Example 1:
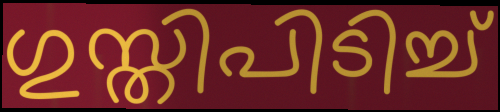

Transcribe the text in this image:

ഗുസ്തിപിടിച്ച്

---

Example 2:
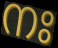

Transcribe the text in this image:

നഃ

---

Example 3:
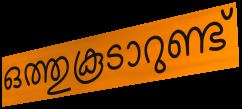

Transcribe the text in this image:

ഒത്തുകൂടാറുണ്ട്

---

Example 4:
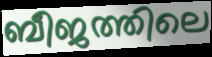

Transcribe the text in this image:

ബീജത്തിലെ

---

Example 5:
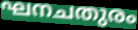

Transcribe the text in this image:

ഘനചതുരം